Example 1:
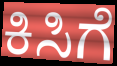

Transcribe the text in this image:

ಕಿಸಿಗೆ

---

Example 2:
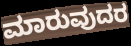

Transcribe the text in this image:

ಮಾರುವುದರ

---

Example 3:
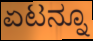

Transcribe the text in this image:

ಏಟನ್ನೂ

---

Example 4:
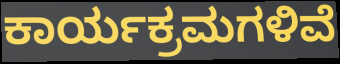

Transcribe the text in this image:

ಕಾರ್ಯಕ್ರಮಗಳಿವೆ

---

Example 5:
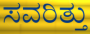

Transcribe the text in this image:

ಸವರಿತ್ತು